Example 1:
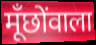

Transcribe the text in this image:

मूँछोंवाला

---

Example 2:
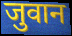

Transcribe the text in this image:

जुवान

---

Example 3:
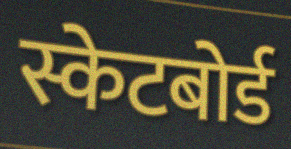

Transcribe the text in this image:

स्केटबोर्ड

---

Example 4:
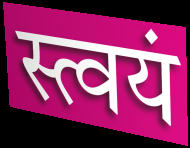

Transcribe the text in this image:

स्त्वयं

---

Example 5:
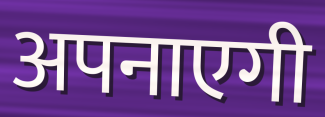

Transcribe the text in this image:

अपनाएगी